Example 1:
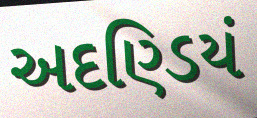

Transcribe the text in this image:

અદણ્ડિયં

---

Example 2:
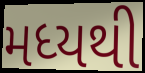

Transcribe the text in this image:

મધ્યથી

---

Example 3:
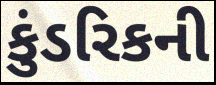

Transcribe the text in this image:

કુંડરિકની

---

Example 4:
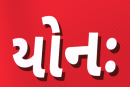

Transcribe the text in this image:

યોનઃ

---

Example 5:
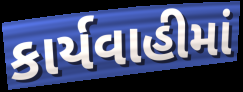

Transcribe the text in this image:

કાર્યવાહીમાં